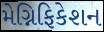
મેગ્નિફિકેશન